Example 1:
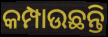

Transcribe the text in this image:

କମ୍ପାଉଛନ୍ତି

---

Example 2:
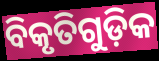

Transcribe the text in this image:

ବିକୃତିଗୁଡ଼ିକ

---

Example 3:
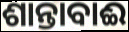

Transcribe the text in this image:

ଶାନ୍ତାବାଈ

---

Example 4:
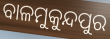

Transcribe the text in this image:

ବାଳମୁକୁନ୍ଦପୁର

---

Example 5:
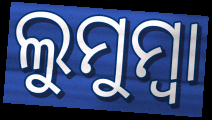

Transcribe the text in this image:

ଲୁମୁମ୍ବା